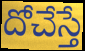
దోచేస్తే